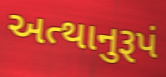
અત્થાનુરૂપં